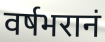
वर्षभरानं